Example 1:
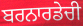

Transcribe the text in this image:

ਬਰਨਾਰਡੇਚੀ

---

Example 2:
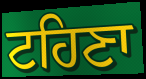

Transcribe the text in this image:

ਟਹਿਣਾ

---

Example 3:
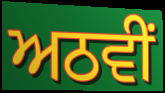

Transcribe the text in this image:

ਅਠਵੀਂ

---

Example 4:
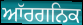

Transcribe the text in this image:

ਆੱਰਗਨਿਕ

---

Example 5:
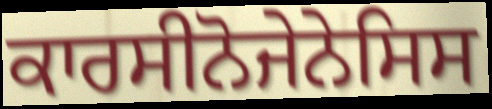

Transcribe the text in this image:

ਕਾਰਸੀਨੋਜੇਨੇਸਿਸ